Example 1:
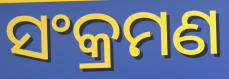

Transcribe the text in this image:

ସଂକ୍ରମଣ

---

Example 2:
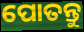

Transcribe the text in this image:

ପୋତନ୍ତୁ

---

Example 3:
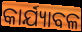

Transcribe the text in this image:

କାର୍ଯ୍ୟାବଳ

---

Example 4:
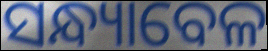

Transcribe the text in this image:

ସନ୍ଧ୍ୟାବେଳ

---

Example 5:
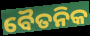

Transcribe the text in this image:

ବୈତନିକ